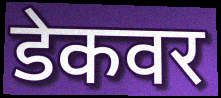
डेकवर